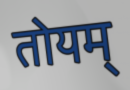
तोयम्